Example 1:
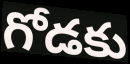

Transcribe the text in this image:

గోడకు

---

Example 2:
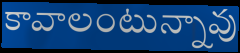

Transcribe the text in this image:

కావాలంటున్నావు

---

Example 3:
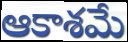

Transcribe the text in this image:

ఆకాశమే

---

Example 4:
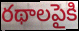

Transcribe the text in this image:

రథాలపైకి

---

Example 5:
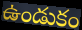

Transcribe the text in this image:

ఉండుకం